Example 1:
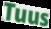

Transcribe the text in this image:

Tuus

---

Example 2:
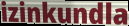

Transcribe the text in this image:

izinkundla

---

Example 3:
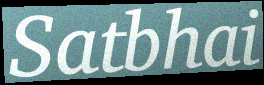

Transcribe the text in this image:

Satbhai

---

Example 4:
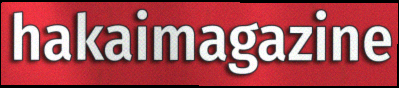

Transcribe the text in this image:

hakaimagazine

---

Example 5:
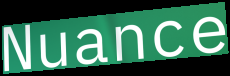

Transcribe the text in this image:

Nuance